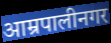
आम्रपालीनगर